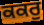
ਕਕਰੁ